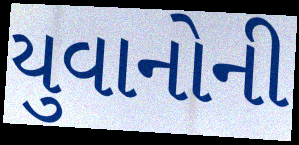
યુવાનોની